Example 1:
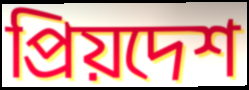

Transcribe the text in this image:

প্রিয়দেশ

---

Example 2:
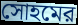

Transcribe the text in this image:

সোহমের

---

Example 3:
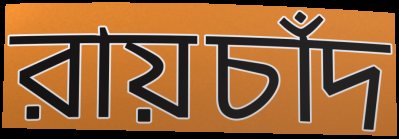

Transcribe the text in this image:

রায়চাঁদ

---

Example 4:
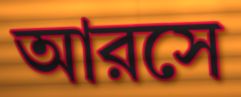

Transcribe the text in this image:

আরসে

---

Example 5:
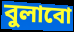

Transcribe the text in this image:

বুলাবো